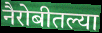
नैरोबीतल्या